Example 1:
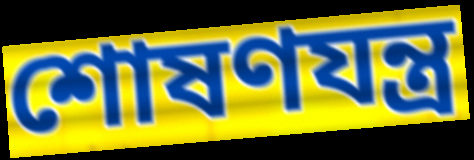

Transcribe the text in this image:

শোষণযন্ত্র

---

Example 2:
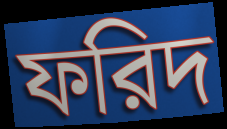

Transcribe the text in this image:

ফরিদ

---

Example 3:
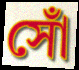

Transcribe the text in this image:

সোঁ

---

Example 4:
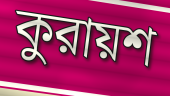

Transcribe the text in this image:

কুরায়শ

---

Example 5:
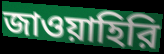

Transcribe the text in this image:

জাওয়াহিরি